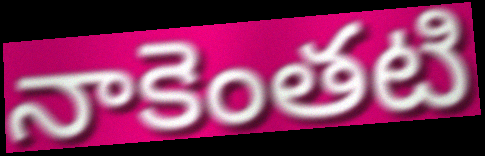
నాకెంతటి